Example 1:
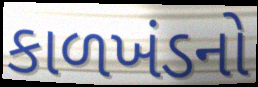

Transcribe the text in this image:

કાળખંડનો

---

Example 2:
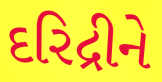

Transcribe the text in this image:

દરિદ્રીને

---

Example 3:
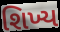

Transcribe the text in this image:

શિખ્ય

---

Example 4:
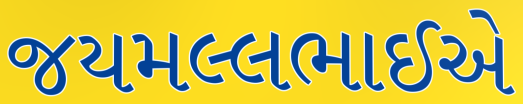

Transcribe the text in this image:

જયમલ્લભાઈએ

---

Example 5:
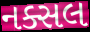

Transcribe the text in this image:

નક્સલ